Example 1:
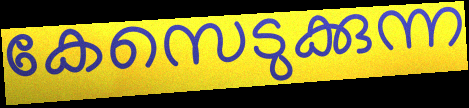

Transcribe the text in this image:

കേസെടുക്കുന്ന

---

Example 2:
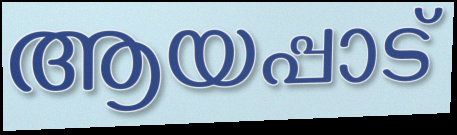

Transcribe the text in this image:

ആയപ്പാട്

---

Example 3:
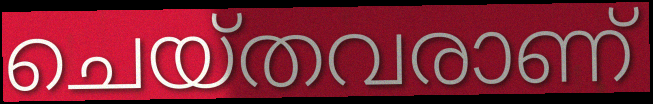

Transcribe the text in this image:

ചെയ്തവരാണ്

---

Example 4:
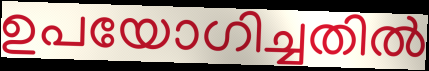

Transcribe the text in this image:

ഉപയോഗിച്ചതിൽ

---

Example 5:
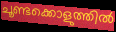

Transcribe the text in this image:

ചൂണ്ടക്കൊളുത്തിൽ